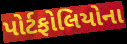
પોર્ટફોલિયોના